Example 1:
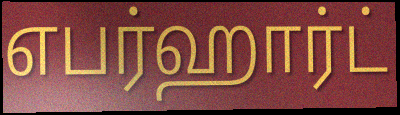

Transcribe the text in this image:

எபர்ஹார்ட்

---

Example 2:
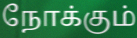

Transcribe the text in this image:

நோக்கும்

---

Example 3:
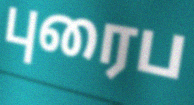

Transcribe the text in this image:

புரைப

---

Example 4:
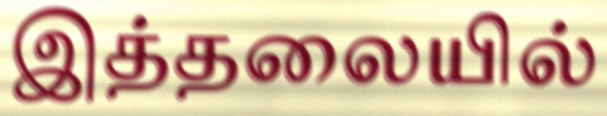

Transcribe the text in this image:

இத்தலையில்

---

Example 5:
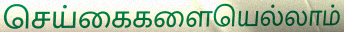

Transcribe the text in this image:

செய்கைகளையெல்லாம்